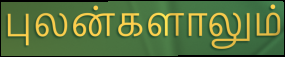
புலன்களாலும்